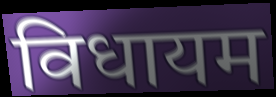
विधायम